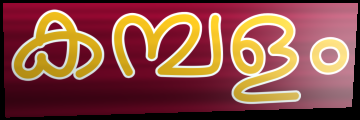
കമ്പളം